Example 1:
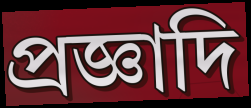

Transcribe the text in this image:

প্রজ্ঞাদি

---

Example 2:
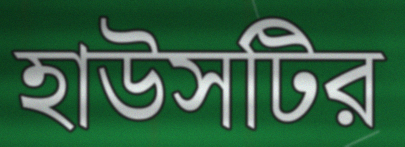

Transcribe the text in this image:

হাউসটির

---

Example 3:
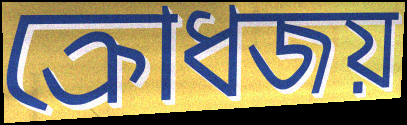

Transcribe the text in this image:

ক্রোধজয়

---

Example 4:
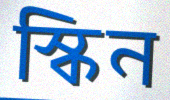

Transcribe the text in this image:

স্কিন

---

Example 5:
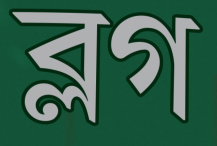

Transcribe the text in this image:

ব্লগ